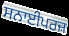
ਸਨਾਈਪਰਜ਼